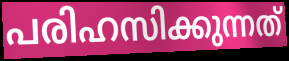
പരിഹസിക്കുന്നത്